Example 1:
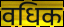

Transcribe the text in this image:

वधिक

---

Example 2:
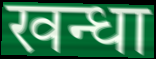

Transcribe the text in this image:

खन्धा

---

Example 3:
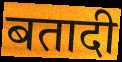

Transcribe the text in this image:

बतादी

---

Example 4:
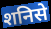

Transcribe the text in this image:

शनिसे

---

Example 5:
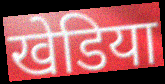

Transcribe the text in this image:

खेडिया